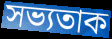
সভ্যতাক